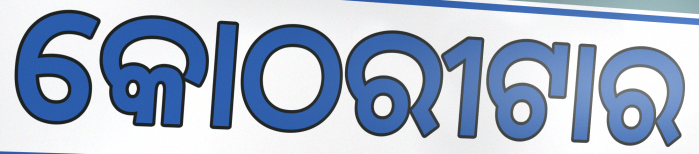
କୋଠରୀଟାର